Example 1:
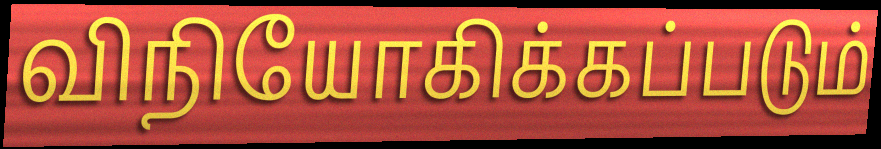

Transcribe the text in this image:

விநியோகிக்கப்படும்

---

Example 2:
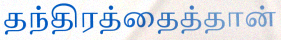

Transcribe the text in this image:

தந்திரத்தைத்தான்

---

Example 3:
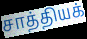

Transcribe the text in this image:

சாத்தியக்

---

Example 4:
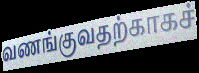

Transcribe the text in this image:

வணங்குவதற்காகச்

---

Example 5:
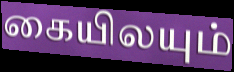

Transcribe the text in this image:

கையிலயும்